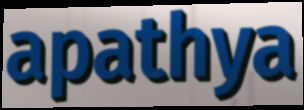
apathya